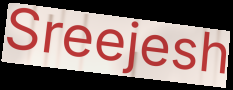
Sreejesh